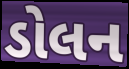
ડોલન